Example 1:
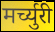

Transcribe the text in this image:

मर्च्युरी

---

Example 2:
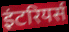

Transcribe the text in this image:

इंटरियर्स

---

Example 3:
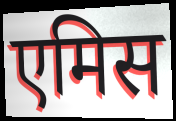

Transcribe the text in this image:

एमिस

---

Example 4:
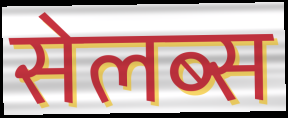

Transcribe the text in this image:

सेलब्स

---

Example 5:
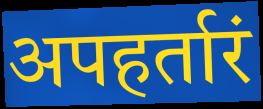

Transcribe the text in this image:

अपहर्तारं